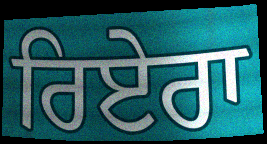
ਰਿਏਰਾ